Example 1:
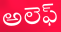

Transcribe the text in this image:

అలెఫ్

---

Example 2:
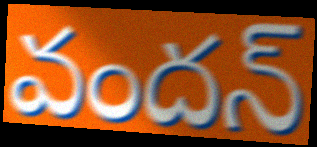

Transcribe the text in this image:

వందన్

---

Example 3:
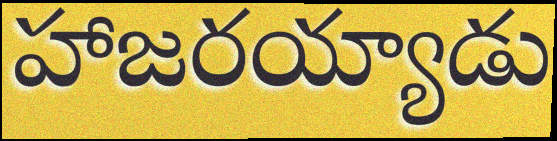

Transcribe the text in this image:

హాజరయ్యాడు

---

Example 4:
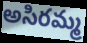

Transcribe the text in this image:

అసిరమ్మ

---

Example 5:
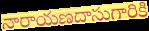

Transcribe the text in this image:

నారాయణదాసుగారికి